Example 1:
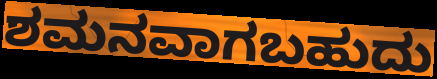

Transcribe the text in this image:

ಶಮನವಾಗಬಹುದು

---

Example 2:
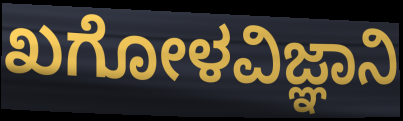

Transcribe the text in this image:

ಖಗೋಳವಿಜ್ಞಾನಿ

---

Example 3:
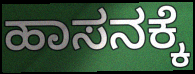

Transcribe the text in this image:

ಹಾಸನಕ್ಕೆ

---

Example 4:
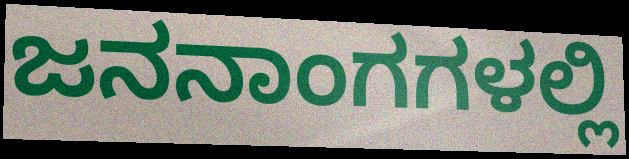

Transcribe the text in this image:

ಜನನಾಂಗಗಳಲ್ಲಿ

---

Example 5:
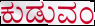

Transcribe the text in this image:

ಕುಡುವಂ